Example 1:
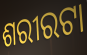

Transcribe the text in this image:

ଶରୀରଟା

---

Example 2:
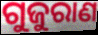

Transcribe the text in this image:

ଗୁଜୁରାଣ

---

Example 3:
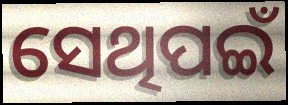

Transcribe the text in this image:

ସେଥିପଇଁ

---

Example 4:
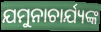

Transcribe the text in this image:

ଯମୁନାଚାର୍ଯ୍ୟଙ୍କ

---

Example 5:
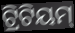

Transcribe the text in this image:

ଟ୍ରିଟିୟମ୍